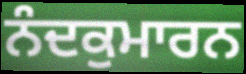
ਨੰਦਕੁਮਾਰਨ